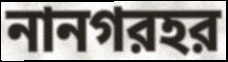
নানগরহর